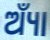
ଅ୍ୟାଁ